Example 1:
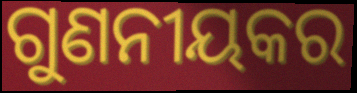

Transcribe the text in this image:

ଗୁଣନୀୟକର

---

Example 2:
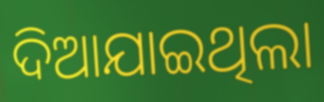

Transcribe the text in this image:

ଦିଆଯାଇଥିଲା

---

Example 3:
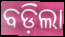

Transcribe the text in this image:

ବଡ଼ିଲା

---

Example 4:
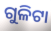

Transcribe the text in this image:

ଗୁଳିଟା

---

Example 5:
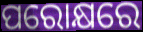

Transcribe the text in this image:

ପରୋକ୍ଷରେ